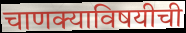
चाणक्याविषयीची